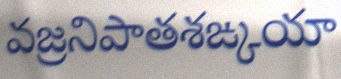
వజ్రనిపాతశఙ్కయా